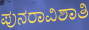
ಪುನರಾವಿಶಾತಿ